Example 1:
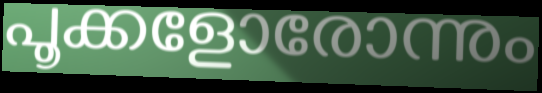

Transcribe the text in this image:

പൂക്കളോരോന്നും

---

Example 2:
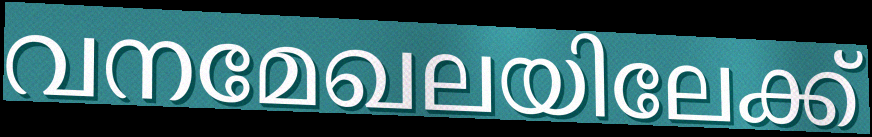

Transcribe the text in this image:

വനമേഖലയിലേക്ക്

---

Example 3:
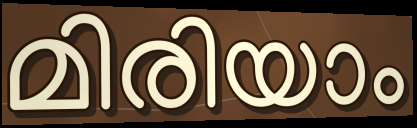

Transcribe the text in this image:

മിരിയാം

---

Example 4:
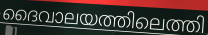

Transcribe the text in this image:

ദൈവാലയത്തിലെത്തി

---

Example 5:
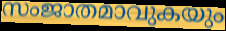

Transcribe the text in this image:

സംജാതമാവുകയും